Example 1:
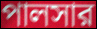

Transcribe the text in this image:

পালসার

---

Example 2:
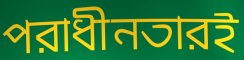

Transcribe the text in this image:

পরাধীনতারই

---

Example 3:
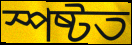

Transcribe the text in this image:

স্পষ্টত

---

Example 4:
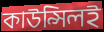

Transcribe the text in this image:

কাউন্সিলই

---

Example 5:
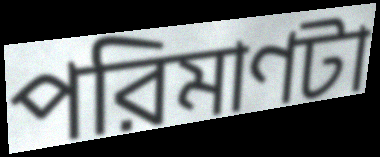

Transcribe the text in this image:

পরিমাণটা